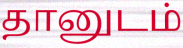
தானுடம்